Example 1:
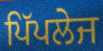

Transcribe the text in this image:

ਪਿੱਪਲੇਜ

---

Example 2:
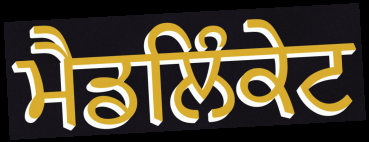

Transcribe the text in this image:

ਮੈਡਲਿੰਕੇਟ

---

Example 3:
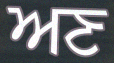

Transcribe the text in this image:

ਅਣ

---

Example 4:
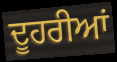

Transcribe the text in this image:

ਦੂਹਰੀਆਂ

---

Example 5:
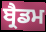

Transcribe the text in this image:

ਬ੍ਰੈਡਮ